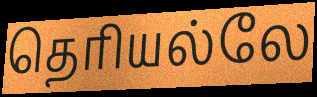
தெரியல்லே